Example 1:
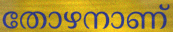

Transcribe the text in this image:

തോഴനാണ്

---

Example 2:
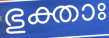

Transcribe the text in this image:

ഭുക്താഃ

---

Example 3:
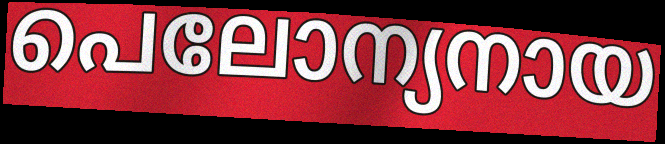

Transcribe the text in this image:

പെലോന്യനായ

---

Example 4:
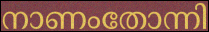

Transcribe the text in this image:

നാണംതോന്നി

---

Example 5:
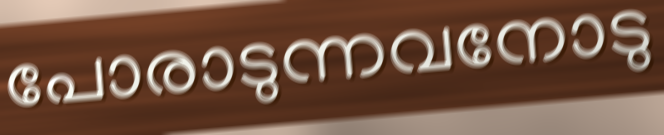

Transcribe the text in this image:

പോരാടുന്നവനോടു